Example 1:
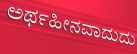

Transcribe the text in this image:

ಅರ್ಥಹೀನವಾದುದು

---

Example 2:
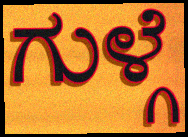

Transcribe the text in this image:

ಗುಳ್ಗೆ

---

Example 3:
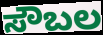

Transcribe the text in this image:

ಸೌಬಲ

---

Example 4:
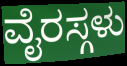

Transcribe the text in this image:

ವೈರಸ್ಗಳು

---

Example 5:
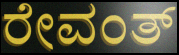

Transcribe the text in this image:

ರೇವಂತ್